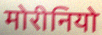
मोरीनियो